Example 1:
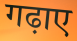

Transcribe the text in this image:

गढ़ाए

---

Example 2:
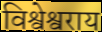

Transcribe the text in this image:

विश्वेश्वराय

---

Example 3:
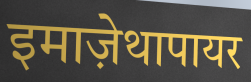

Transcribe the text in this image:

इमाज़ेथापायर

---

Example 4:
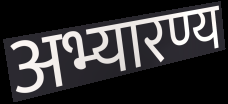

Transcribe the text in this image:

अभ्यारण्य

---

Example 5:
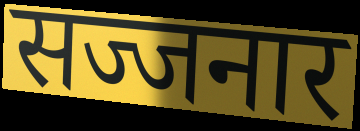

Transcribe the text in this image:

सज्जनार